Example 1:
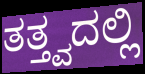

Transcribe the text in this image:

ತತ್ತ್ವದಲ್ಲಿ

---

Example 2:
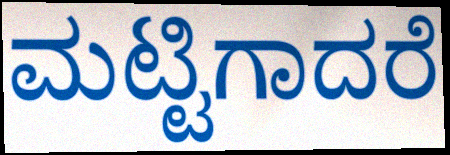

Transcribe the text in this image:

ಮಟ್ಟಿಗಾದರೆ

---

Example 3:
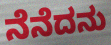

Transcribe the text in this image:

ನೆನೆದನು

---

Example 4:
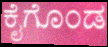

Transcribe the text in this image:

ಕೈಗೊಂಡ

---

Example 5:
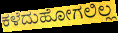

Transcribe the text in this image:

ಕಳೆದುಹೋಗಲಿಲ್ಲ